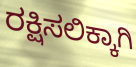
ರಕ್ಷಿಸಲಿಕ್ಕಾಗಿ